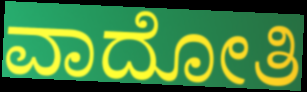
ವಾದೋತಿ